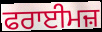
ਫਰਾਈਮਜ਼